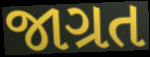
જાગ્રત